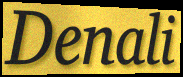
Denali